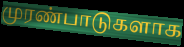
முரண்பாடுகளாக